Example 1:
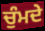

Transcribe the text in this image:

ਚੁੰਮਦੇ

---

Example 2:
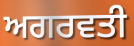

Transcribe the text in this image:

ਅਗਰਵਤੀ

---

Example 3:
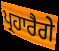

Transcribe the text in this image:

ਪ੍ਰਹਾਰੈਗੇ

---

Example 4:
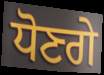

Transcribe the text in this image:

ਧੋਣਗੇ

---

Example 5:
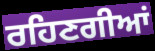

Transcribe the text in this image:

ਰਹਿਣਗੀਆਂ